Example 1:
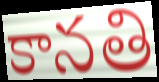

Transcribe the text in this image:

కానతి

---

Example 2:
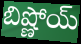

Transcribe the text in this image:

బిష్ణోయ్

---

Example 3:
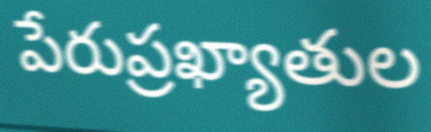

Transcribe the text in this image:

పేరుప్రఖ్యాతుల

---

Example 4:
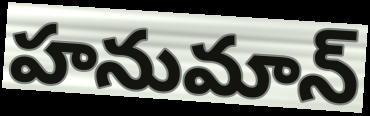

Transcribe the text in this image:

హనుమాన్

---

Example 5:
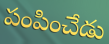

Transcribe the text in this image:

పంపించేడు